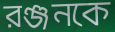
রঞ্জনকে